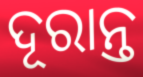
ଦୂରାନ୍ତ